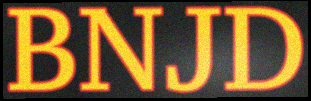
BNJD